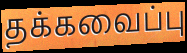
தக்கவைப்பு